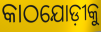
କାଠଯୋଡ଼ୀକୁ